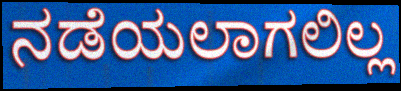
ನಡೆಯಲಾಗಲಿಲ್ಲ